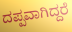
ದಪ್ಪವಾಗಿದ್ದರೆ